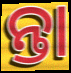
ନ୍ତା